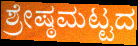
ಶ್ರೇಷ್ಠಮಟ್ಟದ